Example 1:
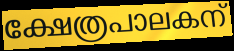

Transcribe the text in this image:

ക്ഷേത്രപാലകന്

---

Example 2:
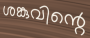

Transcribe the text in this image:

ശങ്കുവിന്റെ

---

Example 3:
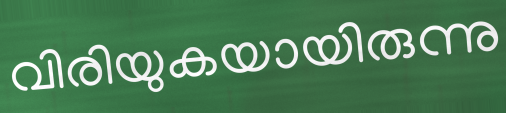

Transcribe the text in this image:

വിരിയുകയായിരുന്നു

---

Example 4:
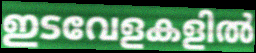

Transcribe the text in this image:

ഇടവേളകളിൽ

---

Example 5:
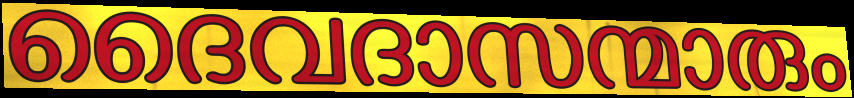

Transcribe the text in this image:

ദൈവദാസന്മാരും